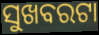
ସୁଖବରଟା